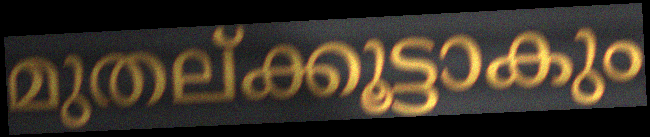
മുതല്ക്കൂട്ടാകും